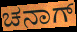
ಚನಾಗ್